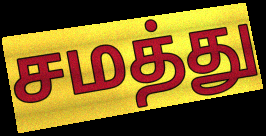
சமத்து